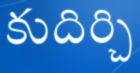
కుదిర్చి